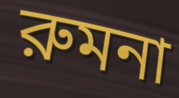
রুমনা